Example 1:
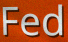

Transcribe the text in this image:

Fed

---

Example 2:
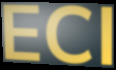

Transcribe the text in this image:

ECI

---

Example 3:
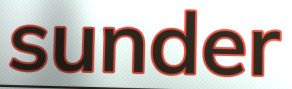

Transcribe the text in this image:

sunder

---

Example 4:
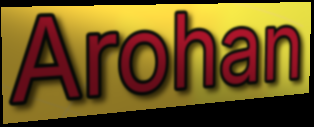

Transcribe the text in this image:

Arohan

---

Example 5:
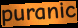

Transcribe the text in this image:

puranic